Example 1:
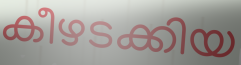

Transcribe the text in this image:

കീഴടക്കിയ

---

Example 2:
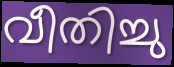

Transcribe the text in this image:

വീതിച്ചു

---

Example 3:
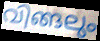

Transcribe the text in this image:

വിങ്ങലും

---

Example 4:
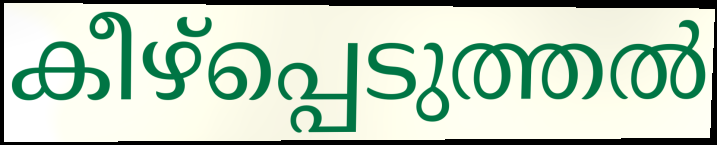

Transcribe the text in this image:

കീഴ്പ്പെടുത്തൽ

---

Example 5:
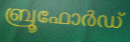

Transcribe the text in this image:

ബ്രൂഫോർഡ്